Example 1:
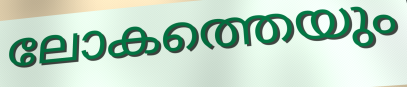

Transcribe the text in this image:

ലോകത്തെയും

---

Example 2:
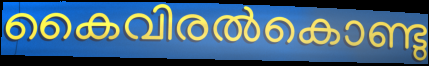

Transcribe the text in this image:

കൈവിരൽകൊണ്ടു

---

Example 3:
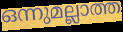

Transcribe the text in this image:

ഒന്നുമല്ലാത്ത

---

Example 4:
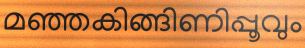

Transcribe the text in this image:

മഞ്ഞകിങ്ങിണിപ്പൂവും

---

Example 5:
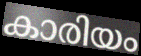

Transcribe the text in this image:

കാരിയം